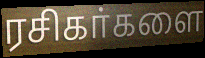
ரசிகர்களை